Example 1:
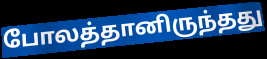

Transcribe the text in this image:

போலத்தானிருந்தது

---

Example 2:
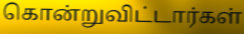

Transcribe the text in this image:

கொன்றுவிட்டார்கள்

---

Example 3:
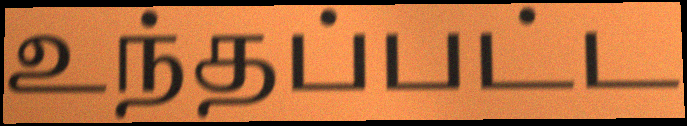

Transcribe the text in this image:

உந்தப்பட்ட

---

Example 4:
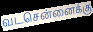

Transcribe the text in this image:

வடசென்னைக்கு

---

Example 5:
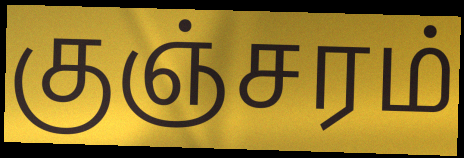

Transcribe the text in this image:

குஞ்சரம்